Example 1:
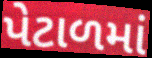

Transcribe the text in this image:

પેટાળમાં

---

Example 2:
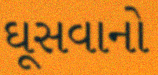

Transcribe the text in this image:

ઘૂસવાનો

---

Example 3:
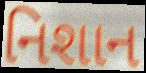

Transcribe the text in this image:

નિશાન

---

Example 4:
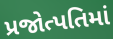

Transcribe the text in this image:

પ્રજોત્પતિમાં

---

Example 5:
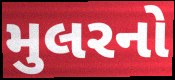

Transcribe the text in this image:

મુલરનો